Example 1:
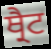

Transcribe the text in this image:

ਥ੍ਰੈਟ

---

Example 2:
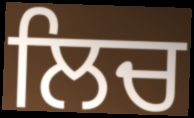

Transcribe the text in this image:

ਲਿਚ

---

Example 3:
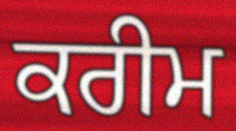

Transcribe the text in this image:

ਕਰੀਮ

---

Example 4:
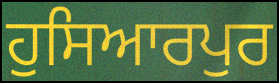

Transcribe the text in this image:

ਹੁਸਿਆਰਪੁਰ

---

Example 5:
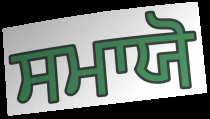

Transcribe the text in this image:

ਸਮਾਯੋ